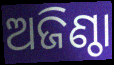
ଅଜିଣ୍ଠା